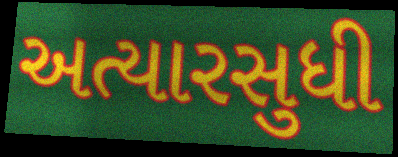
અત્યારસુધી